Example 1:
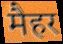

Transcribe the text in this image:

मैहर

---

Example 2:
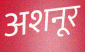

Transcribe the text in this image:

अशनूर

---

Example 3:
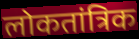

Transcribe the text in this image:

लोकतांत्रिक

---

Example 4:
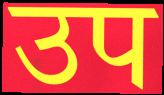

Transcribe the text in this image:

उप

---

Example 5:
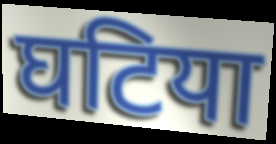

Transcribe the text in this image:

घटिया